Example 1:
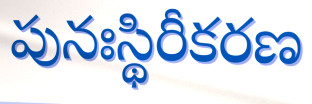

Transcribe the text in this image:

పునఃస్థిరీకరణ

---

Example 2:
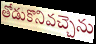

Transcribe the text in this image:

తోడుకొనివచ్చెను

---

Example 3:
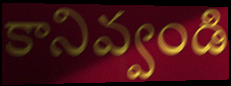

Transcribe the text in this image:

కానివ్వండి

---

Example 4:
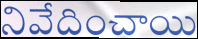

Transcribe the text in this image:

నివేదించాయి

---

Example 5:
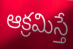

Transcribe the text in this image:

ఆక్రమిస్తే